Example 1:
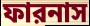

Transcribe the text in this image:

ফারনাস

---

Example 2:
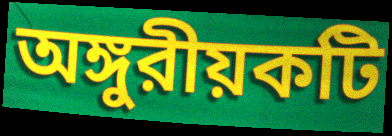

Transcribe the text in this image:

অঙ্গুরীয়কটি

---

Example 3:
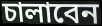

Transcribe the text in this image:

চালাবেন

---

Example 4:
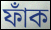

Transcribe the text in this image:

ফাঁক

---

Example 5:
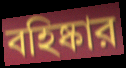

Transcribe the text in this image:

বহিষ্কার